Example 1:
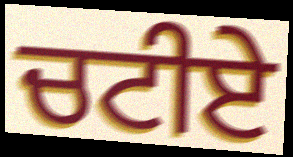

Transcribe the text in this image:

ਚਟੀਏ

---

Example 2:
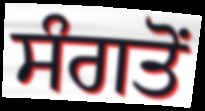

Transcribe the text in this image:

ਸੰਗਤੋਂ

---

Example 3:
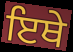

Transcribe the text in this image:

ਇਥੇ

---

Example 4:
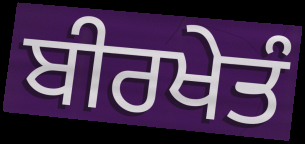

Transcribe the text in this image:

ਬੀਰਖੇਤੰ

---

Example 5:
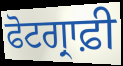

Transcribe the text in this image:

ਫੋਟਗ੍ਰਾਫ਼ੀ